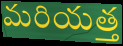
మరియత్త